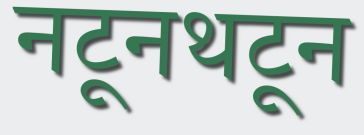
नटूनथटून